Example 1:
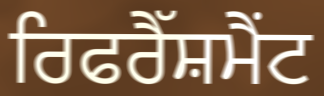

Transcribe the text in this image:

ਰਿਫਰੈੱਸ਼ਮੈਂਟ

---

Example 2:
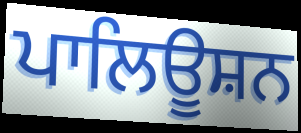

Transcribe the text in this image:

ਪਾਲਿਊਸ਼ਨ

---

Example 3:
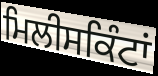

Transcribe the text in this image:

ਮਿਲੀਸਕਿੰਟਾਂ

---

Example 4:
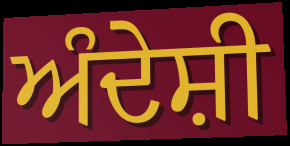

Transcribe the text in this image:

ਅੰਦੇਸ਼ੀ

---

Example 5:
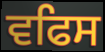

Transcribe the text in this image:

ਵਫਿਸ